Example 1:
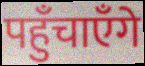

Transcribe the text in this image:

पहुँचाएँगे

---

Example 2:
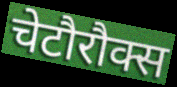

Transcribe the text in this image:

चेटौरौक्स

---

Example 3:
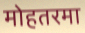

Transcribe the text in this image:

मोहतरमा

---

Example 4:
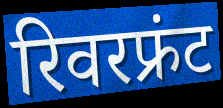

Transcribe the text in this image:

रिवरफ्रंट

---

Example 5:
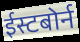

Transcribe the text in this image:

ईस्टबोर्न